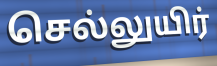
செல்லுயிர்